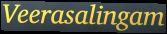
Veerasalingam